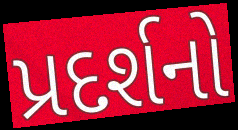
પ્રદર્શનો